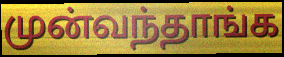
முன்வந்தாங்க